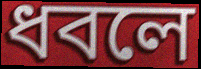
ধবলে